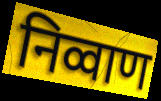
निव्वाण